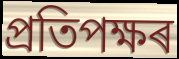
প্ৰতিপক্ষৰ